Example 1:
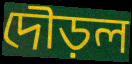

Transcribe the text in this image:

দৌড়ল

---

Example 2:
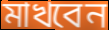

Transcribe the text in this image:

মাখবেন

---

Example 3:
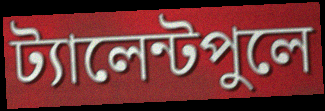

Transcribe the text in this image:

ট্যালেন্টপুলে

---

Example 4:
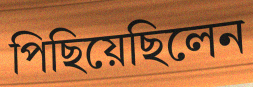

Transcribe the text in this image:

পিছিয়েছিলেন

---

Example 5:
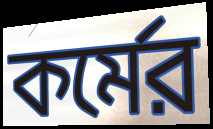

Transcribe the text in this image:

কর্মের